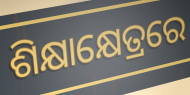
ଶିକ୍ଷାକ୍ଷେତ୍ରରେ